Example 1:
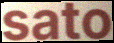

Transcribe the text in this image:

sato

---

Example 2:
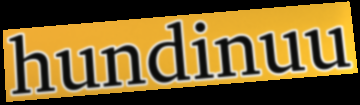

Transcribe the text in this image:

hundinuu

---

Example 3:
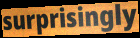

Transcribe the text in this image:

surprisingly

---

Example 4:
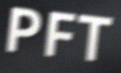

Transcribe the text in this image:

PFT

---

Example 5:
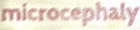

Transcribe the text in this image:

microcephaly